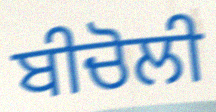
ਬੀਚੋਲੀ